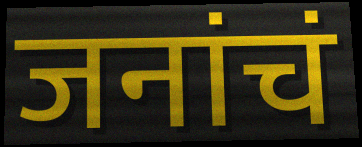
जनांचं